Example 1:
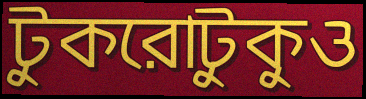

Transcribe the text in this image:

টুকরোটুকুও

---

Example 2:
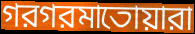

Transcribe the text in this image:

গরগরমাতোয়ারা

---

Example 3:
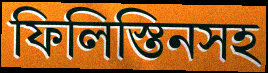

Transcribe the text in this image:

ফিলিস্তিনসহ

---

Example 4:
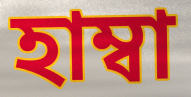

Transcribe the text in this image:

হাম্বা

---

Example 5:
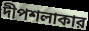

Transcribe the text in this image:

দীপশলাকার